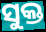
ସୁକ୍ତ